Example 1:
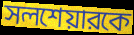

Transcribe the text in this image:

সলশেয়ারকে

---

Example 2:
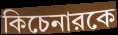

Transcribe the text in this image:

কিচেনারকে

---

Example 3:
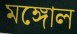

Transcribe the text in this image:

মঙ্গোল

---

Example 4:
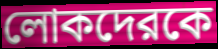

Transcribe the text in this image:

লোকদেরকে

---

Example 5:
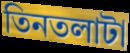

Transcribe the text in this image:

তিনতলাটা